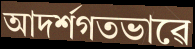
আদৰ্শগতভাৱে